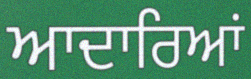
ਆਦਾਰਿਆਂ